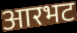
आरभट